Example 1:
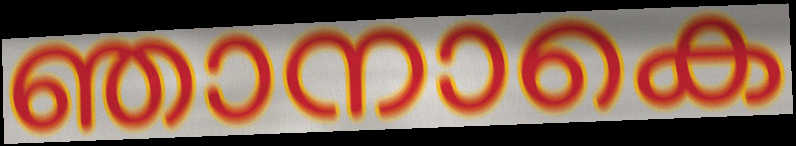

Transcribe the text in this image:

ഞാനാകെ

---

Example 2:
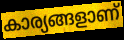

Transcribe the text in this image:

കാര്യങ്ങളാണ്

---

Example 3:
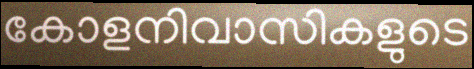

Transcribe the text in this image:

കോളനിവാസികളുടെ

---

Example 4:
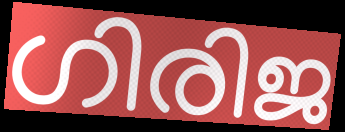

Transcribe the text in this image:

ഗിരിജ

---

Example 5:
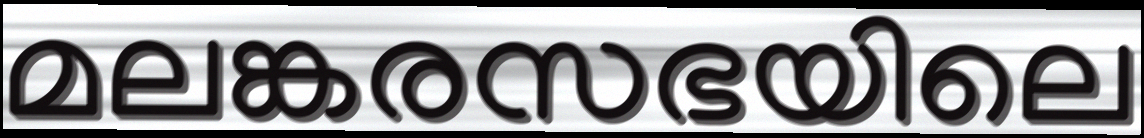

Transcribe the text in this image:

മലങ്കരസഭയിലെ